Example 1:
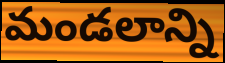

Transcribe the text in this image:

మండలాన్ని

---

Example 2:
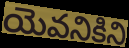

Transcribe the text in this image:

యెవనికిని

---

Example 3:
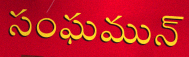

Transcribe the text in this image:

సంఘమున్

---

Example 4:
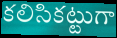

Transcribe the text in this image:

కలిసికట్టుగా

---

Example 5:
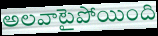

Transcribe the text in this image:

అలవాటైపోయింది